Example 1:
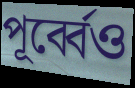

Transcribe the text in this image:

পূর্ব্বেও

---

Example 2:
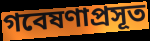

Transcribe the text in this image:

গবেষণাপ্রসূত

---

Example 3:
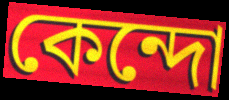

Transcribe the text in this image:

কেন্দো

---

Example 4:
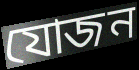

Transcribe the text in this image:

যোজন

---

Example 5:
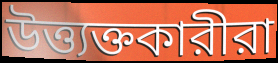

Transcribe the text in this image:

উত্ত্যক্তকারীরা